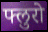
फ्लुरो